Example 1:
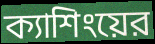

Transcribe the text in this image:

ক্যাশিংয়ের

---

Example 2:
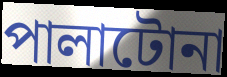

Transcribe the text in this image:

পালাটোনা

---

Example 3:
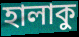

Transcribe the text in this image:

হালাকু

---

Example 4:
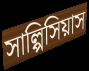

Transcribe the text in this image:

সাল্পিসিয়াস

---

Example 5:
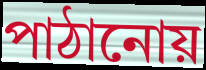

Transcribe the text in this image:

পাঠানোয়